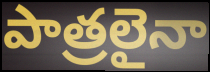
పాత్రలైనా